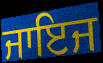
ਜਾਇਜ